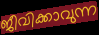
ജീവിക്കാവുന്ന